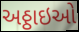
અઠ્ઠાઇઓ